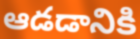
ఆడడానికి